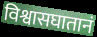
विश्वासघातानं